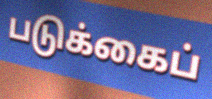
படுக்கைப்